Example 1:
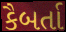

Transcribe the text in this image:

કૈબર્તા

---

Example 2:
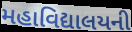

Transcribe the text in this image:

મહાવિદ્યાલયની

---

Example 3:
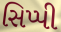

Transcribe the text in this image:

સિપ્પી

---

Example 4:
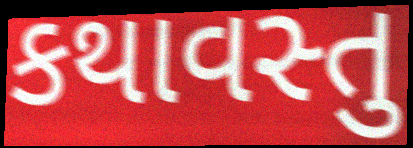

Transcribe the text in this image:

કથાવસ્તુ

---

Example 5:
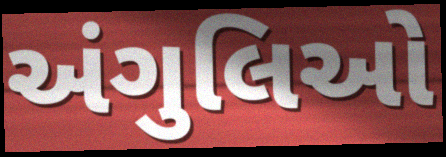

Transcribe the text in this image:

અંગુલિઓ